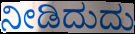
ನೀಡಿದುದು